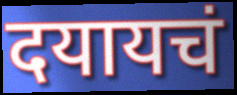
दयायचं